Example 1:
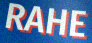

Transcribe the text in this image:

RAHE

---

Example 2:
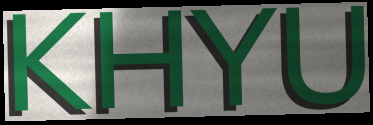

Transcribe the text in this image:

KHYU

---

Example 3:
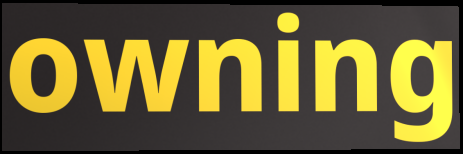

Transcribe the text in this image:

owning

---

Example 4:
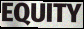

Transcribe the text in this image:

EQUITY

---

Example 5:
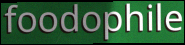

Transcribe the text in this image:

foodophile